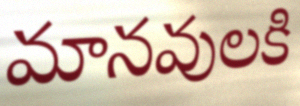
మానవులకి